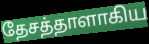
தேசத்தாளாகிய